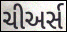
ચીઅર્સ